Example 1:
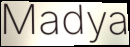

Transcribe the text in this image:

Madya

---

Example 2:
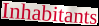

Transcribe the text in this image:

Inhabitants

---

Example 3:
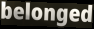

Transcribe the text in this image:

belonged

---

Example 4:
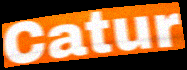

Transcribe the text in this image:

Catur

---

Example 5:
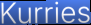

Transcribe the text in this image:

Kurries